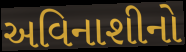
અવિનાશીનો